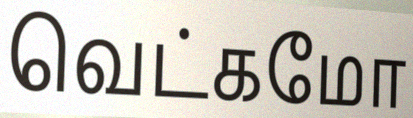
வெட்கமோ